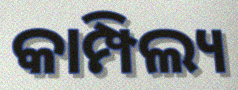
କାମ୍ପିଲ୍ୟ